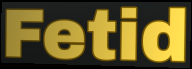
Fetid